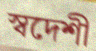
স্বদেশী